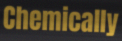
Chemically